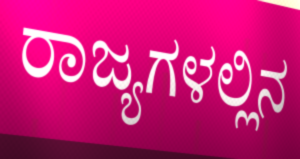
ರಾಜ್ಯಗಳಲ್ಲಿನ